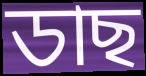
ডাছ